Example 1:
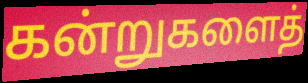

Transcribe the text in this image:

கன்றுகளைத்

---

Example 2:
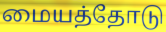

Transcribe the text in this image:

மையத்தோடு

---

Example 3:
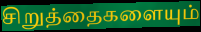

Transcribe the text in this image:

சிறுத்தைகளையும்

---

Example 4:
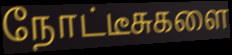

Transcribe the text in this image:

நோட்டீசுகளை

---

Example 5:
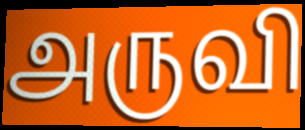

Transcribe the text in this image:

அருவி